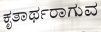
ಕೃತಾರ್ಥರಾಗುವ